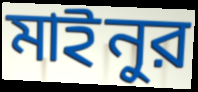
মাইনুর